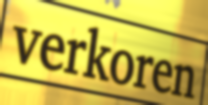
verkoren